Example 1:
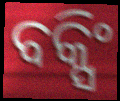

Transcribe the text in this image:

ବକ୍ସିଂ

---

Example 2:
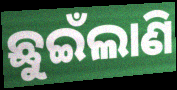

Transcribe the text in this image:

ଛୁଇଁଲାଣି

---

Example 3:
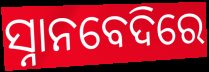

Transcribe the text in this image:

ସ୍ନାନବେଦିରେ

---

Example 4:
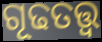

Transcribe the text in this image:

ଗୂଢତତ୍ତ୍ୱ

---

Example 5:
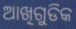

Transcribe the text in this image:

ଆଖିଗୁଡିକ